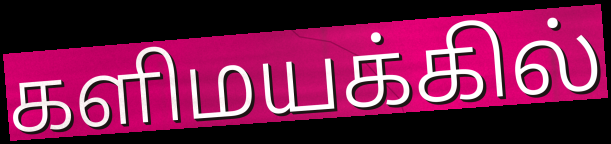
களிமயக்கில்